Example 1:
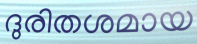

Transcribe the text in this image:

ദുരിതശമായ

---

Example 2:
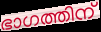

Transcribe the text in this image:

ഭാഗത്തിന്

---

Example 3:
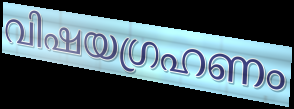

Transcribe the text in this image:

വിഷയഗ്രഹണം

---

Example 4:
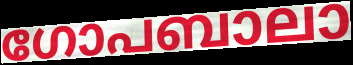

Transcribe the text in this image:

ഗോപബാലാ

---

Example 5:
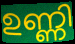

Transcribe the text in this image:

ഉണ്ണി